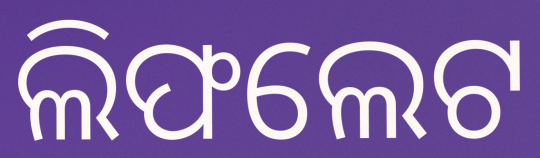
ଲିଫଲେଟ